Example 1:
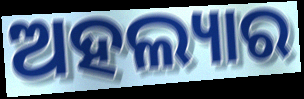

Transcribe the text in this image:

ଅହଲ୍ୟାର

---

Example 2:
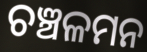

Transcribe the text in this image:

ଚଞ୍ଚଳମନ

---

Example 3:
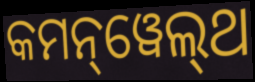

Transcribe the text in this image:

କମନ୍‌ୱେଲ୍‌ଥ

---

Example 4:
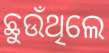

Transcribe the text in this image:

ଛୁଉଁଥିଲେ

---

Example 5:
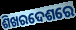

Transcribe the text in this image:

ଶିଖରଦେଶରେ